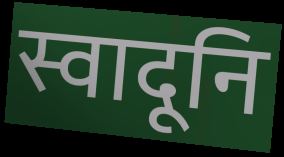
स्वादूनि